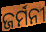
ଜର୍ମନୀ